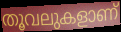
തൂവലുകളാണ്